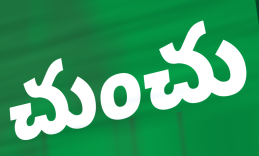
చుంచు